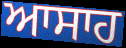
ਆਸਾਹ